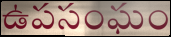
ఉపసంఘం